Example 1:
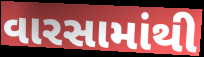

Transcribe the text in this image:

વારસામાંથી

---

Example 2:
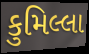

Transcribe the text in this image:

કુમિલ્લા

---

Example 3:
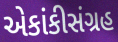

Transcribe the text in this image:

એકાંકીસંગ્રહ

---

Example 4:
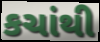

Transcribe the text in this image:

કચાંથી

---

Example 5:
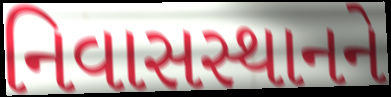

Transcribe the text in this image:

નિવાસસ્થાનને